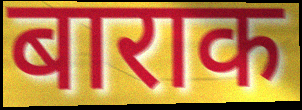
बाराक